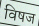
विषज